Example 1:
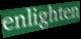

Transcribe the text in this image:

enlighten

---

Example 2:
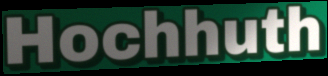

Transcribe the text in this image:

Hochhuth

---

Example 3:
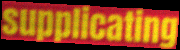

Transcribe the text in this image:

supplicating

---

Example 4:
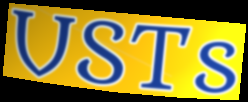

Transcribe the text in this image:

USTs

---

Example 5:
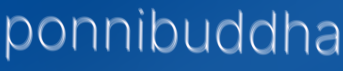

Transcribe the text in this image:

ponnibuddha